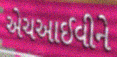
એચઆઈવીને